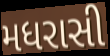
મધરાસી